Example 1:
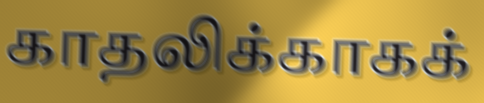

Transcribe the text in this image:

காதலிக்காகக்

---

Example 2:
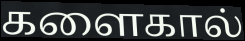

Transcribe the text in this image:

களைகால்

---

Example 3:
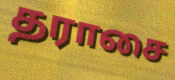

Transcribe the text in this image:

தராசை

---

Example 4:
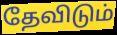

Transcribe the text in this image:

தேவிடும்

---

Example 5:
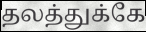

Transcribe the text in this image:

தலத்துக்கே